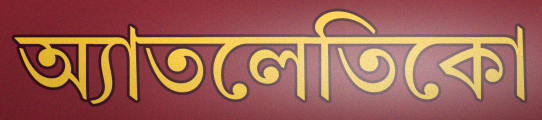
অ্যাতলেতিকো